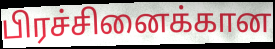
பிரச்சினைக்கான